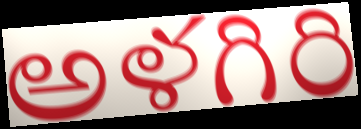
అళగిరి